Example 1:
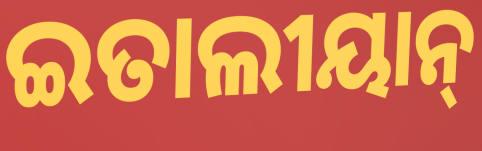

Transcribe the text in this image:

ଇତାଲୀୟାନ୍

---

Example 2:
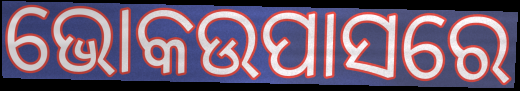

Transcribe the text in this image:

ଭୋକଉପାସରେ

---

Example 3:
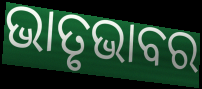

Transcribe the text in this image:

ଭାତୃଭାବର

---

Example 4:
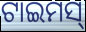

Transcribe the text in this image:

ଟାଇମସ୍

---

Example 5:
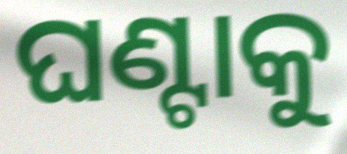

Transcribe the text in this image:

ଘଣ୍ଟାକୁ